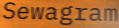
Sewagram